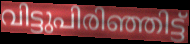
വിട്ടുപിരിഞ്ഞിട്ട്